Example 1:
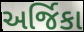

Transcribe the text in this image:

અર્જિકા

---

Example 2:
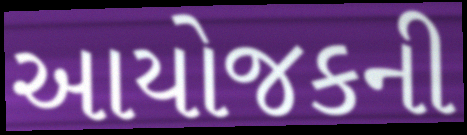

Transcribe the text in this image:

આયોજકની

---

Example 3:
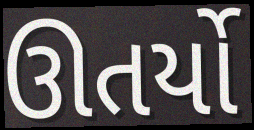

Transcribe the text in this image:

ઊતર્યો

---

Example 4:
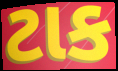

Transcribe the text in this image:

ટાક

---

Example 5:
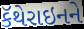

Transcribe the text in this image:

કૅથેરાઇનને